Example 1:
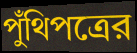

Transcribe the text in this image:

পুঁথিপত্রের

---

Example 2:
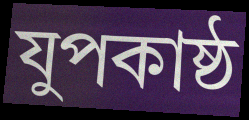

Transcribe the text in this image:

যুপকাষ্ঠ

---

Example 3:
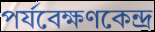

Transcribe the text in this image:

পর্যবেক্ষণকেন্দ্র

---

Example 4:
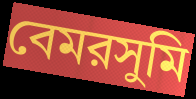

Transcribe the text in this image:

বেমরসুমি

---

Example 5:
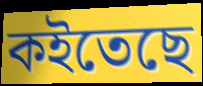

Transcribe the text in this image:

কইতেছে